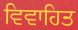
ਵਿਵਾਹਿਤ